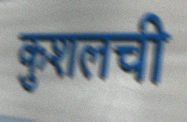
कुशलची